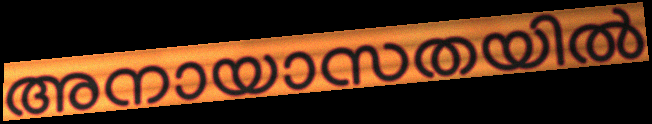
അനായാസതയിൽ